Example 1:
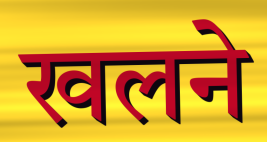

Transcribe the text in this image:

खलने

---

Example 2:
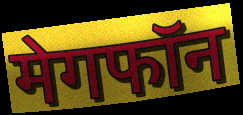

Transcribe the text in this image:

मेगफॉन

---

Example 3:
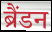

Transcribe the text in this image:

ब्रैंडन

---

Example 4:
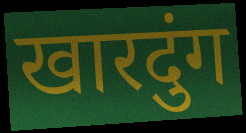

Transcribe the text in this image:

खारदुंग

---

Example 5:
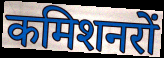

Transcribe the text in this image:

कमिशनरों